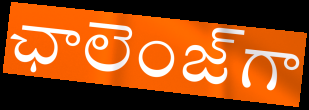
ఛాలెంజ్‌గా